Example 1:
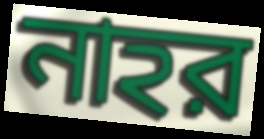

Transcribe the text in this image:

নাহর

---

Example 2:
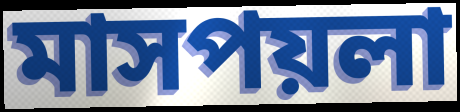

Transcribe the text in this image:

মাসপয়লা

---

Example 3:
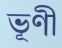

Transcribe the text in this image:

ভূণী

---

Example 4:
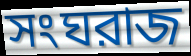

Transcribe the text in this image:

সংঘরাজ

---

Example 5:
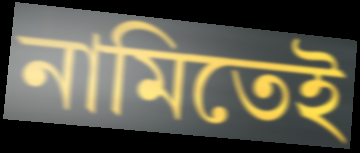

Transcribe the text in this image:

নামিতেই